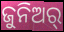
ଜୁନିଅର୍